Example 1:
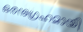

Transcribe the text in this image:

ഒരനുഗ്രഹമായി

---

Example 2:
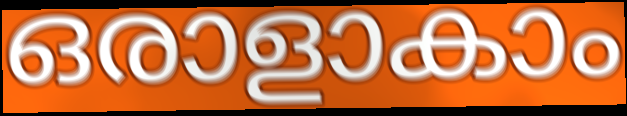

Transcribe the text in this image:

ഒരാളാകാം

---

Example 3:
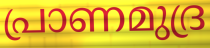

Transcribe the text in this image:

പ്രാണമുദ്ര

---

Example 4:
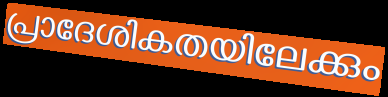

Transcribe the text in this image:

പ്രാദേശികതയിലേക്കും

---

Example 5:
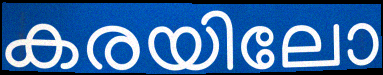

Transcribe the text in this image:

കരയിലോ